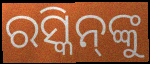
ରସ୍କିନ୍‌ଙ୍କୁ